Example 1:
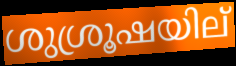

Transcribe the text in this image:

ശുശ്രൂഷയില്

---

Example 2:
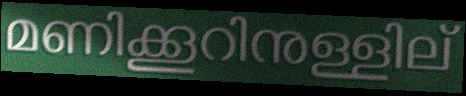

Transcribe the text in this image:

മണിക്കൂറിനുള്ളില്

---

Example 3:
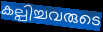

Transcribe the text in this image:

കല്പിച്ചവരുടെ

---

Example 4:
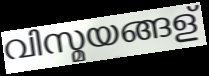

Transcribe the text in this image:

വിസ്മയങ്ങള്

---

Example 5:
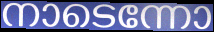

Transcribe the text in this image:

നാടെന്നോ